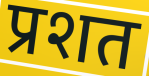
प्रशत